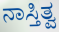
ನಾಸ್ತಿತ್ವ